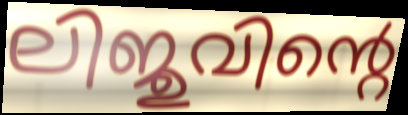
ലിജുവിന്റെ